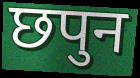
छपुन